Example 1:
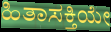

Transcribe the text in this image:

ಹಿತಾಸಕ್ತಿಯೇ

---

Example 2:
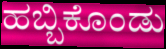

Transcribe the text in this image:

ಹಬ್ಬಿಕೊಂಡು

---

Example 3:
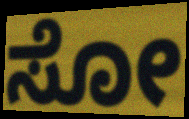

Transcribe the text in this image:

ಸೋ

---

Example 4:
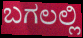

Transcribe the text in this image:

ಬಗಲಲ್ಲಿ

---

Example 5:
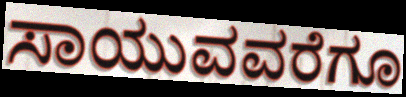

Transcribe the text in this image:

ಸಾಯುವವರೆಗೂ